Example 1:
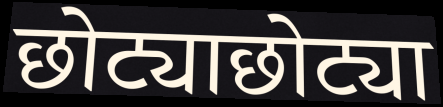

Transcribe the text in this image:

छोट्याछोट्या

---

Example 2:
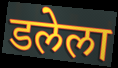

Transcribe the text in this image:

डलेला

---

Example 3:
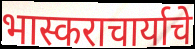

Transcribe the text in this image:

भास्कराचार्याचे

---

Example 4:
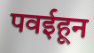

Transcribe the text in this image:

पवईहून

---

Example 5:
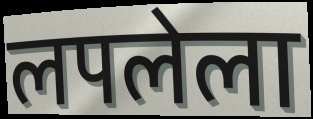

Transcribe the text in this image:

लपलेला